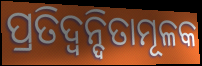
ପ୍ରତିଦ୍ୱନ୍ଦିତାମୂଳକ